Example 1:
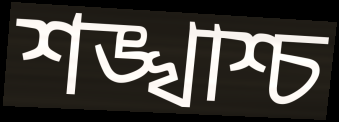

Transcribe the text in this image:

শঙ্খাশ্চ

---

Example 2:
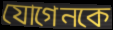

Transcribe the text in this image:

যোগেনকে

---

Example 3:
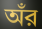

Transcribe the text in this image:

অঁর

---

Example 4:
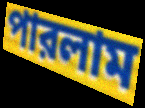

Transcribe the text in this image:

পারলাম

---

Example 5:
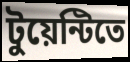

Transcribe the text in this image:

টুয়েন্টিতে